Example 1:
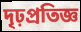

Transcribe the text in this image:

দৃঢ়প্রতিজ্ঞ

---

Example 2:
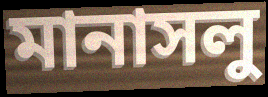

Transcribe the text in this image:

মানাসলু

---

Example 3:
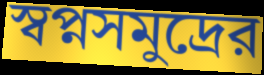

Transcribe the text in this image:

স্বপ্নসমুদ্রের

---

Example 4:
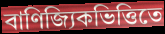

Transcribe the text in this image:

বাণিজ্যিকভিত্তিতে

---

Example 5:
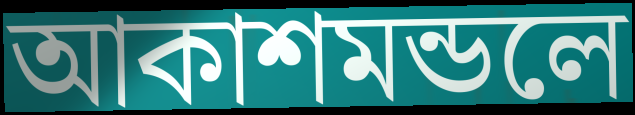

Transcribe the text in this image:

আকাশমন্ডলে